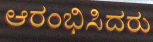
ಆರಂಭಿಸಿದರು